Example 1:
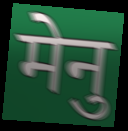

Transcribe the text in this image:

मेनु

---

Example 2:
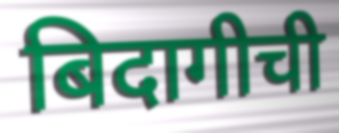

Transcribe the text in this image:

बिदागीची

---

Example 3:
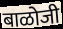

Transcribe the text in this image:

बाळोजी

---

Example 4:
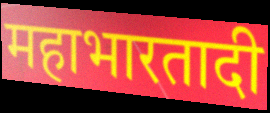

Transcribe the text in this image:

महाभारतादी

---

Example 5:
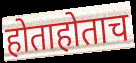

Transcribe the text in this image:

होताहोताच